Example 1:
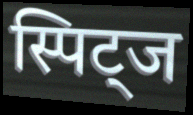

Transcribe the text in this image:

स्पिट्ज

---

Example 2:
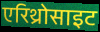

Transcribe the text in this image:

एरिथ्रोसाइट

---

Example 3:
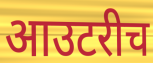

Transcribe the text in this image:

आउटरीच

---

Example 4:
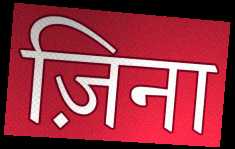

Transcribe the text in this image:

ज़िना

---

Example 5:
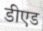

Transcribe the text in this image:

डीएड